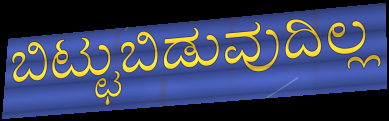
ಬಿಟ್ಟುಬಿಡುವುದಿಲ್ಲ